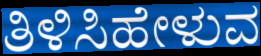
ತಿಳಿಸಿಹೇಳುವ